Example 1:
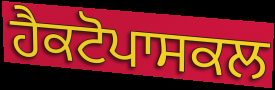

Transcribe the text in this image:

ਹੈਕਟੋਪਾਸਕਲ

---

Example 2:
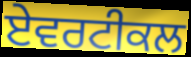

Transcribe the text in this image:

ਏਵਰਟੀਕਲ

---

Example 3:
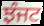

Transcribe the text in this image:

ਝੰਜਟ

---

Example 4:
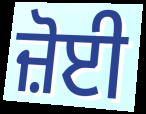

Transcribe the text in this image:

ਜ਼ੋਈ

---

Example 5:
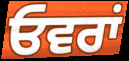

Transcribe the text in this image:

ਓਵਰਾਂ